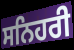
ਸਨਿਹਰੀ